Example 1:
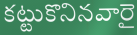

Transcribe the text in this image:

కట్టుకొనినవారై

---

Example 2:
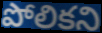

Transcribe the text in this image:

పోలికని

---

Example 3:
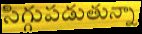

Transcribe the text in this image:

సిగ్గుపడుతున్నా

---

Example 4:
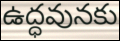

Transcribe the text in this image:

ఉద్ధవునకు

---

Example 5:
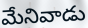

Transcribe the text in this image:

మేనివాడు